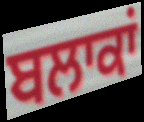
ਬਲਾਕਾਂ